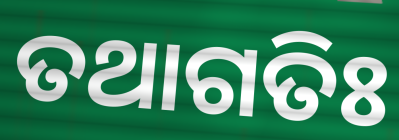
ତଥାଗତିଃ